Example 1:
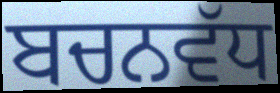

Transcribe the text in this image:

ਬਚਨਵੱਧ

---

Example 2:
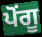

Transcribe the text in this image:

ਪੋਂਗੂ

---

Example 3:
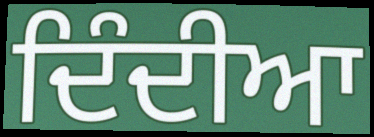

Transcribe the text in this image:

ਦਿੰਦੀਆ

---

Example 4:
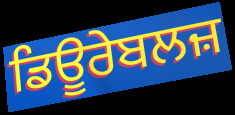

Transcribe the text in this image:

ਡਿਊਰੇਬਲਜ਼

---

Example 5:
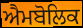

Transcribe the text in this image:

ਐਮਬੋਲਿਕ